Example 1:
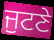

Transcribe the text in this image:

ਜੁਟਣੇ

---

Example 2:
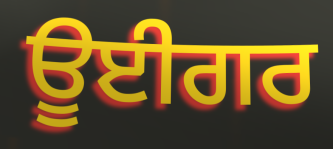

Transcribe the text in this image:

ਊਈਗਰ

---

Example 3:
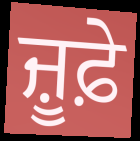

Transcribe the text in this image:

ਜ਼ੂਫ਼ੇ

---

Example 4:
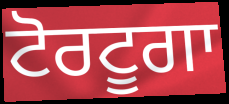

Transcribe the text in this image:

ਟੋਰਟੂਗਾ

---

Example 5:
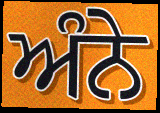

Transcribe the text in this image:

ਅੰਨੇ